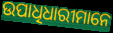
ଉପାଧିଧାରୀମାନେ